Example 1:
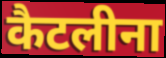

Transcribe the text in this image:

कैटलीना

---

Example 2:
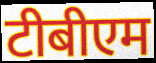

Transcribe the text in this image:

टीबीएम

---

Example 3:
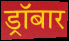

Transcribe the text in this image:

ड्रॉबार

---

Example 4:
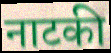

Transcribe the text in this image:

नाटकी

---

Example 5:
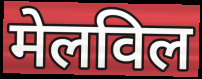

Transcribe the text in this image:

मेलविल